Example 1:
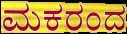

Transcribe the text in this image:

ಮಕರಂದ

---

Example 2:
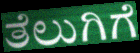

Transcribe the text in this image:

ತೆಲುಗಿಗೆ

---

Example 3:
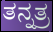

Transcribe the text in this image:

ತನ್ನತ್ರ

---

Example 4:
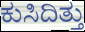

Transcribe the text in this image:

ಕುಸಿದಿತ್ತು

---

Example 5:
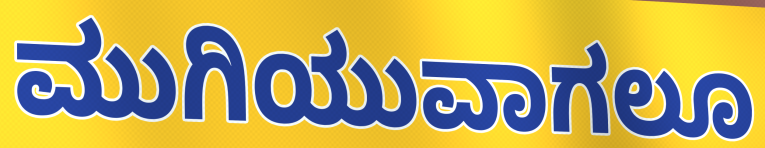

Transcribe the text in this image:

ಮುಗಿಯುವಾಗಲೂ